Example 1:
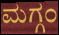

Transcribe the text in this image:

ಮಗ್ಗಂ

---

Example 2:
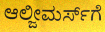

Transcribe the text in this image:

ಆಲ್ಜೀಮರ್ಸ್‌ಗೆ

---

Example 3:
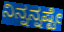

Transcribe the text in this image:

ನಿನ್ನನ್ನಷ್ಟೇ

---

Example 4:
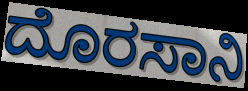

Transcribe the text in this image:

ದೊರಸಾನಿ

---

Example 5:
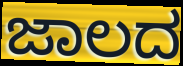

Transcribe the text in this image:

ಜಾಲದ